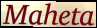
Maheta